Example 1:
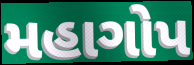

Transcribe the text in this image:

મહાગોપ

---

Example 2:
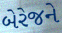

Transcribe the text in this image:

બેરેજને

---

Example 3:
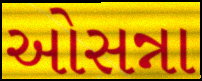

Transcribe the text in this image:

ઓસન્ના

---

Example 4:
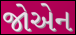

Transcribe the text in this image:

જોએન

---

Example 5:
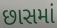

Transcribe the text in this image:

છાસમાં